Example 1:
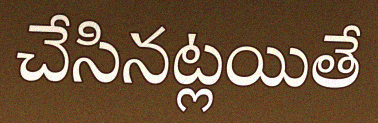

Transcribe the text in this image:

చేసినట్లయితే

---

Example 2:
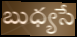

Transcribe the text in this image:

బుధ్యసే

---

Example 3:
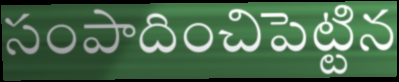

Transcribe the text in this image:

సంపాదించిపెట్టిన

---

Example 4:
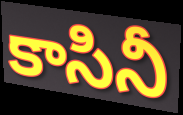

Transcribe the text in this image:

కాసినీ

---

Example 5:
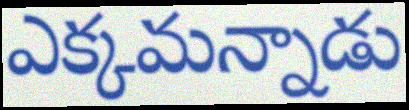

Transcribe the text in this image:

ఎక్కమన్నాడు